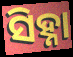
ସିହ୍ନା